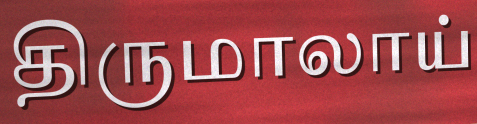
திருமாலாய்